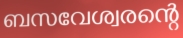
ബസവേശ്വരന്റെ